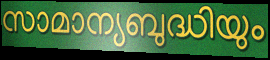
സാമാന്യബുദ്ധിയും